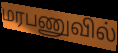
மரபணுவில்